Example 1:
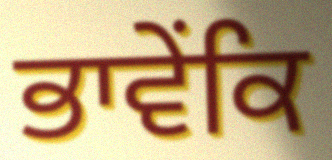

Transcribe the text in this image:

ਭਾਵੇਂਕਿ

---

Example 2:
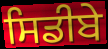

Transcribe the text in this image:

ਸਿਡੀਬੇ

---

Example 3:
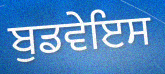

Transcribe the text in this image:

ਬੁਡਵੇਇਸ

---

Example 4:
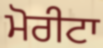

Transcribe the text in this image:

ਮੋਰੀਟਾ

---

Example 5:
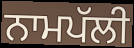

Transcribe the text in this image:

ਨਾਮਪੱਲੀ